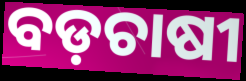
ବଡ଼ଚାଷୀ